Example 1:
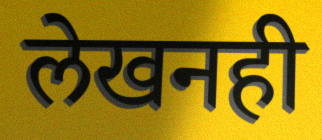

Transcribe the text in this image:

लेखनही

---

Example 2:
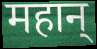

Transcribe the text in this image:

महान्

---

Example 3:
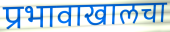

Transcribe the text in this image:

प्रभावाखालचा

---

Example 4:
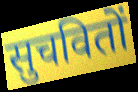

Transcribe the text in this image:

सुचवितों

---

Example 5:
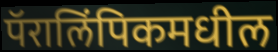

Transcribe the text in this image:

पॅरालिंपिकमधील